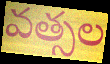
వత్సల